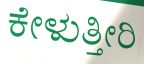
ಕೇಳುತ್ತೀರಿ